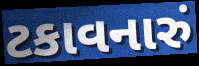
ટકાવનારું